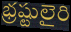
భ్రష్టులైరి